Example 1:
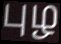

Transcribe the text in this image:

புழ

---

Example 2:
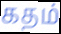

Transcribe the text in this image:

கதம்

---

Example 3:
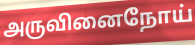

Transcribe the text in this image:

அருவினைநோய்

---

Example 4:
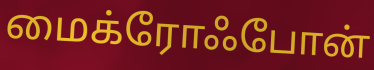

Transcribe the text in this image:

மைக்ரோஃபோன்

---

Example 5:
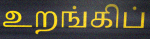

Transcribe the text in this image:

உறங்கிப்